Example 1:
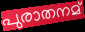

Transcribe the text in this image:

പുരാതനമ്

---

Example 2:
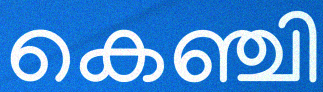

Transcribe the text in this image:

കെഞ്ചി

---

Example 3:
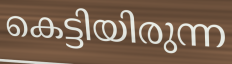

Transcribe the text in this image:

കെട്ടിയിരുന്ന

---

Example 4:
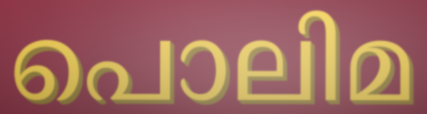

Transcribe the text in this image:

പൊലിമ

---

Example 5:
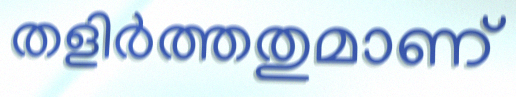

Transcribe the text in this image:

തളിർത്തതുമാണ്